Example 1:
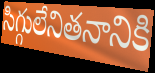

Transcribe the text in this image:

సిగ్గులేనితనానికి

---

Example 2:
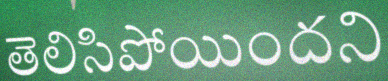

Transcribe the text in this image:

తెలిసిపోయిందని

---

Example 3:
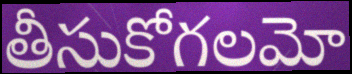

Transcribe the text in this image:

తీసుకోగలమో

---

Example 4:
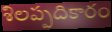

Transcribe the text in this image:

శిలప్పదికారం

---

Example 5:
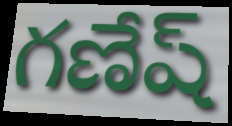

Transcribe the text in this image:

గణేష్